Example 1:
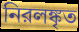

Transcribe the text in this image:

নিরলঙ্কৃত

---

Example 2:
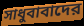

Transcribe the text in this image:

সাধুবাবাদের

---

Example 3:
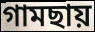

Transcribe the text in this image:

গামছায়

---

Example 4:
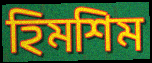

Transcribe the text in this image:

হিমশিম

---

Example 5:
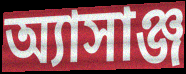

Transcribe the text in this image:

অ্যাসাঞ্জ